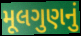
મૂલગુણનું